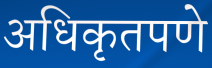
अधिकृतपणे